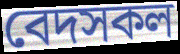
বেদসকল